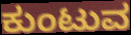
ಕುಂಟುವ